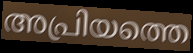
അപ്രിയത്തെ